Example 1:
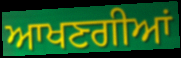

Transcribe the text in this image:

ਆਖਣਗੀਆਂ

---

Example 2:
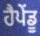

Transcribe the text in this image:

ਹੈਪੇਂਡੂ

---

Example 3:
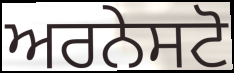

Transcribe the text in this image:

ਅਰਨੇਸਟੋ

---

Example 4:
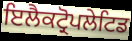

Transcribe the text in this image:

ਇਲੈਕਟ੍ਰੋਪਲੇਟਿਡ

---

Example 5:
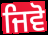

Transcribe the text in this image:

ਜਿਵੋ